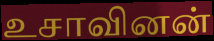
உசாவினன்